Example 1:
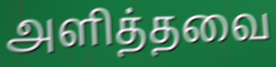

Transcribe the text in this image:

அளித்தவை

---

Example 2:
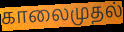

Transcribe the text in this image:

காலைமுதல்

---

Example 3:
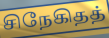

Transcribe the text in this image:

சிநேகிதத்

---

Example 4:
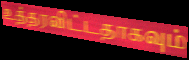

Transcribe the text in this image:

உத்தரவிட்டதாகவும்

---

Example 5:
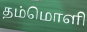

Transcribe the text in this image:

தம்மொளி